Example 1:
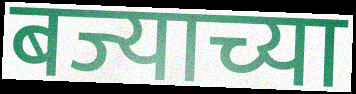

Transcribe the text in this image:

बज्याच्या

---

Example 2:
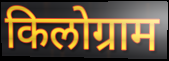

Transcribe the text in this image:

किलोग्राम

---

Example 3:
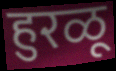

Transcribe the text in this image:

हुरळू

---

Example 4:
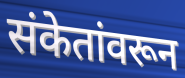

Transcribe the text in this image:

संकेतांवरून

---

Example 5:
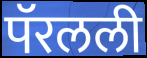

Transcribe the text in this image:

पॅरलली